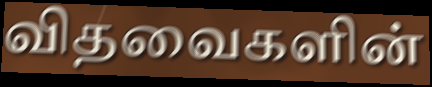
விதவைகளின்